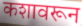
कशावरून